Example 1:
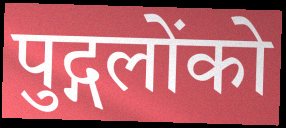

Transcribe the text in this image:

पुद्गलोंको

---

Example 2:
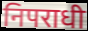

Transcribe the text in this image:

निपराधी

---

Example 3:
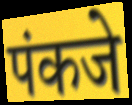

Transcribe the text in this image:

पंकजे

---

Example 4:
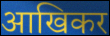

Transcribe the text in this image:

आखिकर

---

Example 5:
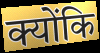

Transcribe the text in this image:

क्‍योंकि